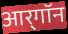
आर्‌गॉन